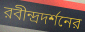
রবীন্দ্রদর্শনের